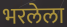
भरलेला